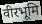
वीरभूमि